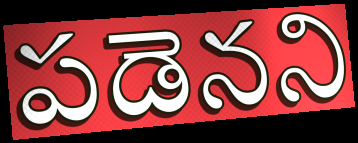
పడెనని